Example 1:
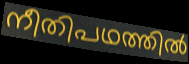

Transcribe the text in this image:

നീതിപഥത്തിൽ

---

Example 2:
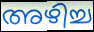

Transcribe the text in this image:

അഴിച്ച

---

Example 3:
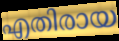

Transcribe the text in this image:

എതിരായ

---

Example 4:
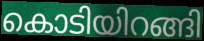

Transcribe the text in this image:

കൊടിയിറങ്ങി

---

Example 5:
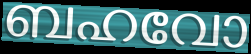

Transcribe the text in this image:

ബഹവോ